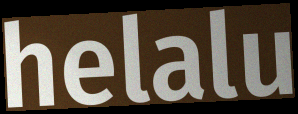
helalu